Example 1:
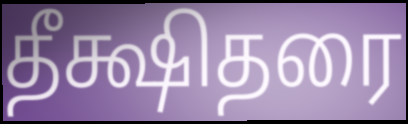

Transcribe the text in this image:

தீக்ஷிதரை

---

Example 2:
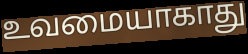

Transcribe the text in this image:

உவமையாகாது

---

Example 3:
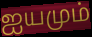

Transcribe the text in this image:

ஐயமும்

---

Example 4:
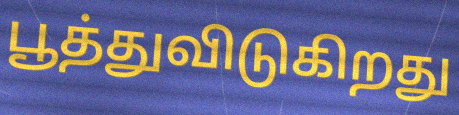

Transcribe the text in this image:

பூத்துவிடுகிறது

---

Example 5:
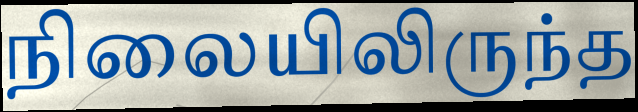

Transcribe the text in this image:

நிலையிலிருந்த